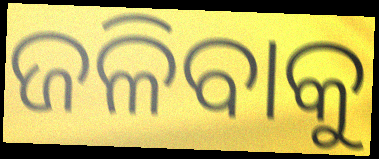
ଜଳିବାକୁ